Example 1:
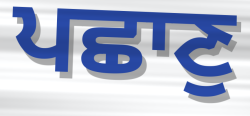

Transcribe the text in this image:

ਪਛਾਣੁ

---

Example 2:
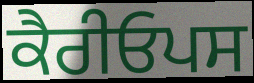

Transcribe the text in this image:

ਕੈਰੀਓਪਸ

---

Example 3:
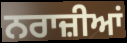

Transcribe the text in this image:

ਨਰਾਜ਼ੀਆਂ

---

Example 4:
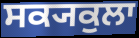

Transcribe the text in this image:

ਸਕ੍ਯਕੁਲਾ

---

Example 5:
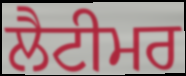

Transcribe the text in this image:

ਲੈਟੀਮਰ